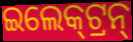
ଇଲେକ୍‌ଟ୍ରନ୍